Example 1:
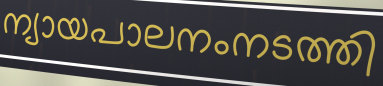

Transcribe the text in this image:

ന്യായപാലനംനടത്തി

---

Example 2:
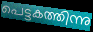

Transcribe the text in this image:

പെട്ടകത്തിന്നു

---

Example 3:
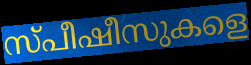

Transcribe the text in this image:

സ്പീഷീസുകളെ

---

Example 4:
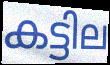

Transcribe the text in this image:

കട്ടില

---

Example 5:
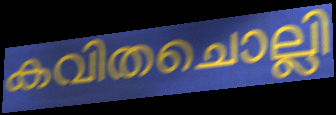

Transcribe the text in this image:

കവിതചൊല്ലി